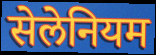
सेलेनियम